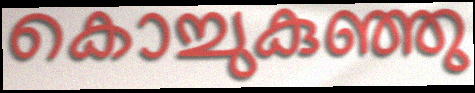
കൊച്ചുകുഞ്ഞു